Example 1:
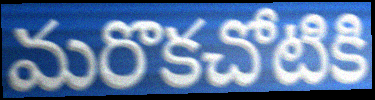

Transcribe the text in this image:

మరొకచోటికి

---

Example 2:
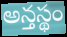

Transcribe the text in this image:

అన్తస్థం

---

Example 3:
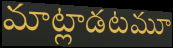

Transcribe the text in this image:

మాట్లాడటమూ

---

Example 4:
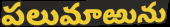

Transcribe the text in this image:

పలుమాఱును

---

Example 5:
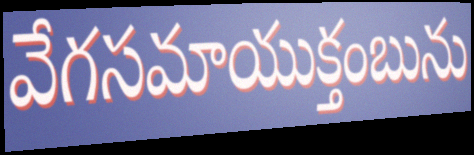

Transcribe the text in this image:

వేగసమాయుక్తంబును